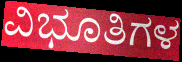
ವಿಭೂತಿಗಳ